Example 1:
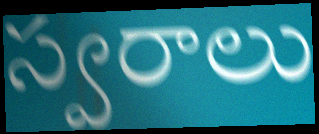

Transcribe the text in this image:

స్వరాలు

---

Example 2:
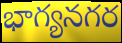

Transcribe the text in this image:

భాగ్యనగర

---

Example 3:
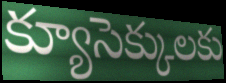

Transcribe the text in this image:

క్యూసెక్కులకు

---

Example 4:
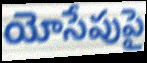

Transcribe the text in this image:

యోసేపుపై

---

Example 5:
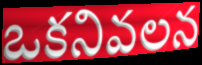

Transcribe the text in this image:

ఒకనివలన